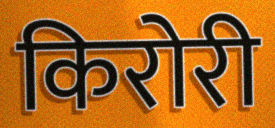
किरोरी